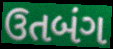
ઉતબંગ